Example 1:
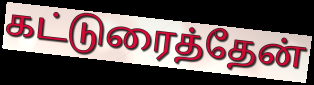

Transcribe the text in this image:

கட்டுரைத்தேன்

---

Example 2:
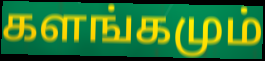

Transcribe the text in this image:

களங்கமும்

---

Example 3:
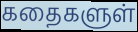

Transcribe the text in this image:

கதைகளுள்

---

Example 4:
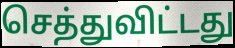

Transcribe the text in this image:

செத்துவிட்டது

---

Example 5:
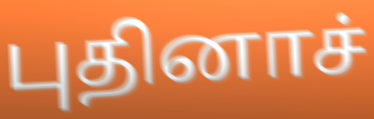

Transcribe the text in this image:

புதினாச்